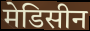
मेडिसीन